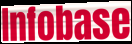
Infobase